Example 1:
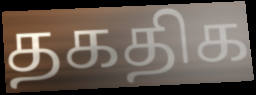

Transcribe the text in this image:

தகதிக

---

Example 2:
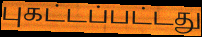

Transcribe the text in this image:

புகட்டப்பட்டது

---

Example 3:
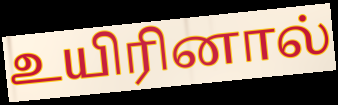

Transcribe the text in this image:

உயிரினால்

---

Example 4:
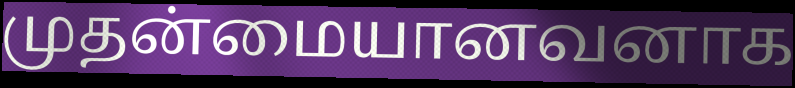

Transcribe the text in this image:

முதன்மையானவனாக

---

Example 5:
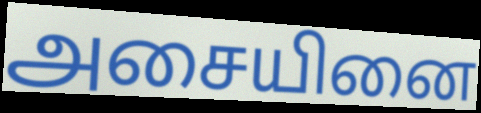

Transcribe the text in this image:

அசையினை